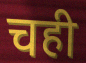
चही